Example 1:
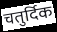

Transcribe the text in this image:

चतुर्दिक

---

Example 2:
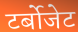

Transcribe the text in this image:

टर्बोजेट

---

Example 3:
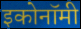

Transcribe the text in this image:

इकोनॉमी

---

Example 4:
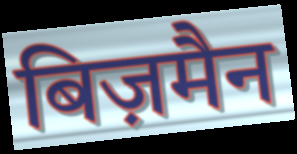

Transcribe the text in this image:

बिज़मैन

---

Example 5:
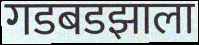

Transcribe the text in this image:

गडबडझाला